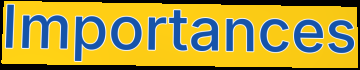
Importances